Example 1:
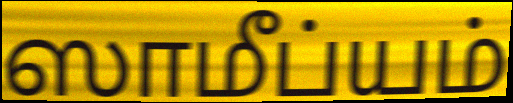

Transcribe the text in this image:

ஸாமீப்யம்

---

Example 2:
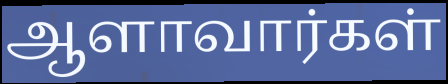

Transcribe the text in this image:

ஆளாவார்கள்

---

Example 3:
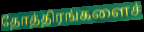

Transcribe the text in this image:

தோத்திரங்களைச்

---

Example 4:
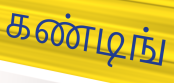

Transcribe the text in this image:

கண்டிங்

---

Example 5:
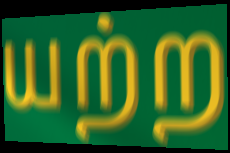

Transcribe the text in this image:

யற்ற